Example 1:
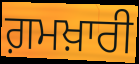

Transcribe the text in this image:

ਗ਼ਮਖ਼ਾਰੀ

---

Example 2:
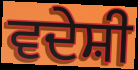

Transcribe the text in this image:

ਵਦੇਸ਼ੀ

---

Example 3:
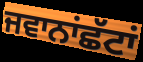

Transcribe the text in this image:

ਜਵਾਨਾਂਛੱਟਾਂ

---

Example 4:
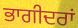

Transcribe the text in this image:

ਭਾਗੀਦਰਾਂ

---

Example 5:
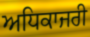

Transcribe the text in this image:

ਅਧਿਕਾਜਰੀ